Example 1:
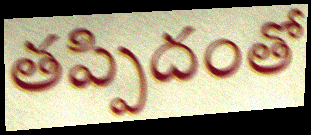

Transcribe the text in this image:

తప్పిదంతో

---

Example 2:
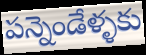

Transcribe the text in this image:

పన్నెండేళ్ళకు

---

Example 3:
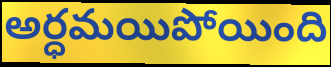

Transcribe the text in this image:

అర్ధమయిపోయింది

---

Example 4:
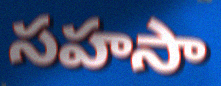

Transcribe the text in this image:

సహసా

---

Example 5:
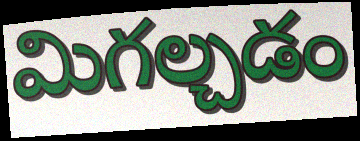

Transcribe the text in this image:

మిగల్చడం